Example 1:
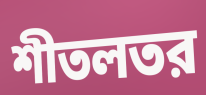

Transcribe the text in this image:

শীতলতর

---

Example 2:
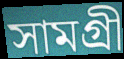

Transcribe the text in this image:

সামগ্রী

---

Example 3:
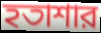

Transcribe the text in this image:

হতাশার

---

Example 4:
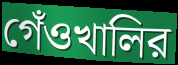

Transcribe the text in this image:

গেঁওখালির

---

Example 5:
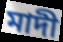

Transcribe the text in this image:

মাদী